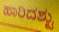
ಹಾರಿದಶ್ಟು